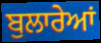
ਬੁਲਾਰੇਆਂ